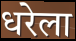
धरेला